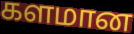
களமான